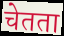
चेतता